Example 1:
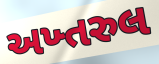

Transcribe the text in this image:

અખ્તરુલ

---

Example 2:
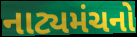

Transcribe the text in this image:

નાટ્યમંચનો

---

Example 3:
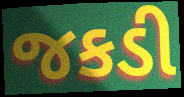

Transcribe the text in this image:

જકડી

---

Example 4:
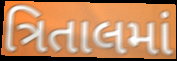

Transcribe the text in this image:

ત્રિતાલમાં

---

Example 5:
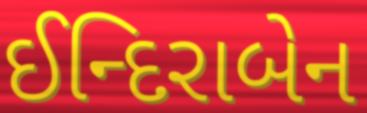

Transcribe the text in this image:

ઈન્દિરાબેન